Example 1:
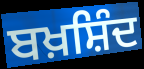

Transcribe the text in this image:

ਬਖ਼ਸ਼ਿੰਦ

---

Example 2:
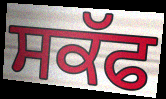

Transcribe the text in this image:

ਸਕੱਫ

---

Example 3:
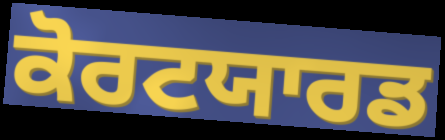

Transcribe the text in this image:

ਕੋਰਟਯਾਰਡ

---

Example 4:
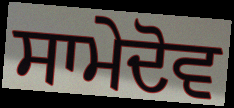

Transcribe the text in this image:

ਸਾਮੇਦੋਵ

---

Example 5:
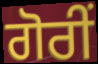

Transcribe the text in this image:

ਗੋਰੀਂ